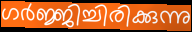
ഗർജ്ജിച്ചിരിക്കുന്നു